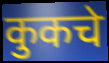
कुकचे